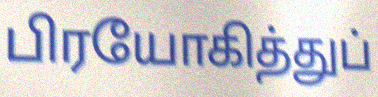
பிரயோகித்துப்